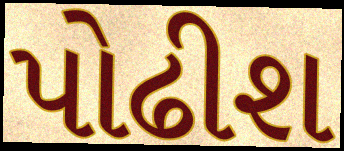
પોઢીશ